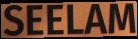
SEELAM